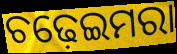
ଚଢ଼େଇମରା